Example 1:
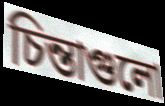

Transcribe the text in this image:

চিন্তাগুলো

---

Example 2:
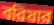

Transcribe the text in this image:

বরিষার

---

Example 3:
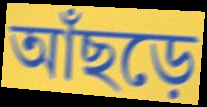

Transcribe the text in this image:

আঁছড়ে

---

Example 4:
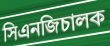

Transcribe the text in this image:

সিএনজিচালক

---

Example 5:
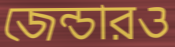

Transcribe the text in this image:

জেন্ডারও